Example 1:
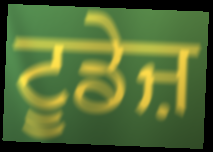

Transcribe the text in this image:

ਟੂਡੇਜ਼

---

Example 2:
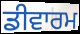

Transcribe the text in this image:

ਡੀਵਾਰਮ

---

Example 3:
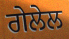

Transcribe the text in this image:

ਗੇਲੇਲ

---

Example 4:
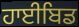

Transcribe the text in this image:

ਹਾਈਬਿਡ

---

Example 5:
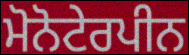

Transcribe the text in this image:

ਮੋਨੋਟੇਰਪੀਨ